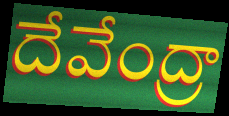
దేవేంద్రా